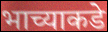
भाच्याकडे